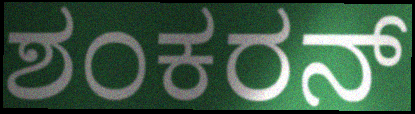
ಶಂಕರನ್